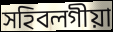
সহিবলগীয়া